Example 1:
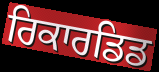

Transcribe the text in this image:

ਰਿਕਾਰਡਿਡ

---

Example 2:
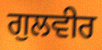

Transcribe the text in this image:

ਗੁਲਵੀਰ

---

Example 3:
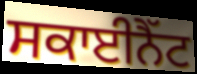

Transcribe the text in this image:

ਸਕਾਈਨੈੱਟ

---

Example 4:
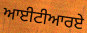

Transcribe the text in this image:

ਆਈਟੀਆਰਏ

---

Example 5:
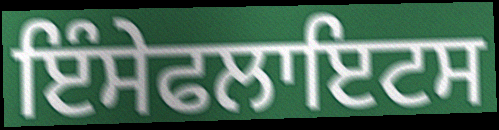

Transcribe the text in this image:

ਇੰਸੇਫਲਾਇਟਸ